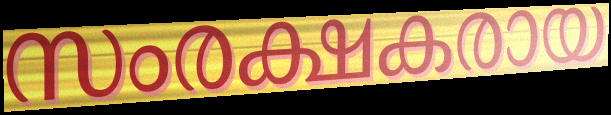
സംരക്ഷകരായ